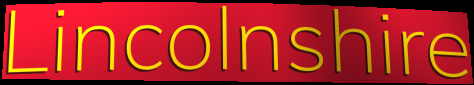
Lincolnshire